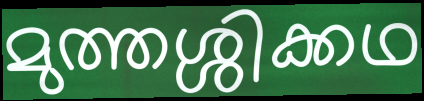
മുത്തശ്ശിക്കഥ